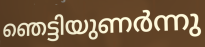
ഞെട്ടിയുണർന്നു